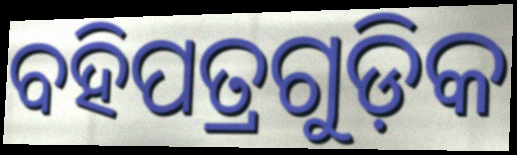
ବହିପତ୍ରଗୁଡ଼ିକ